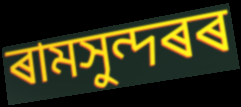
ৰামসুন্দৰৰ